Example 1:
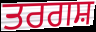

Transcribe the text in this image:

ਤਰਗਸ਼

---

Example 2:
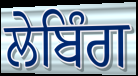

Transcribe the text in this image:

ਲੇਬਿੰਗ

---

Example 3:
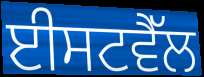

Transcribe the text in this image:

ਈਸਟਵੈੱਲ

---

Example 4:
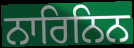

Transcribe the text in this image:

ਨਾਰਿਨਿਨ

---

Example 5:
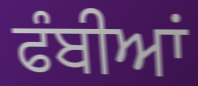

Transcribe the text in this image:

ਫੰਬੀਆਂ